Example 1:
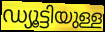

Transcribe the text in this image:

ഡ്യൂട്ടിയുള്ള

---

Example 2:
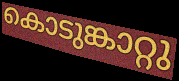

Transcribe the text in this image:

കൊടുങ്കാറ്റു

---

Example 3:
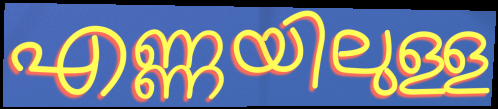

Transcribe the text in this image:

എണ്ണയിലുള്ള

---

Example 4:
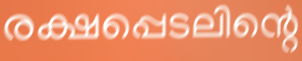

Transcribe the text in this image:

രക്ഷപ്പെടലിന്റെ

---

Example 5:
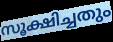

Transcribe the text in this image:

സൂക്ഷിച്ചതും